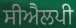
ਸੀਐਲਪੀ